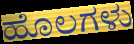
ಹೊಲಗಳು